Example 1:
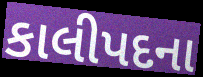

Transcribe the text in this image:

કાલીપદના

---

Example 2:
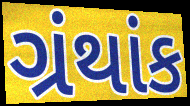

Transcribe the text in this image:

ગ્રંથાંક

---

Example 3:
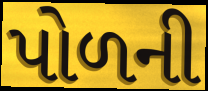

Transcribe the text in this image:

પોળની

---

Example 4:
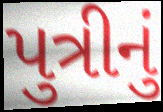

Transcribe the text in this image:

પુત્રીનું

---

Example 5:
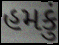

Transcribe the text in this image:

હમકું